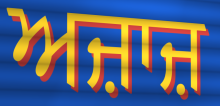
ਅਜ਼ਾਜ਼